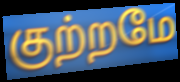
குற்றமே